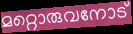
മറ്റൊരുവനോട്